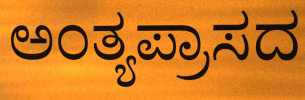
ಅಂತ್ಯಪ್ರಾಸದ